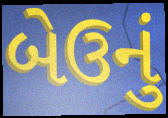
બેઉનું